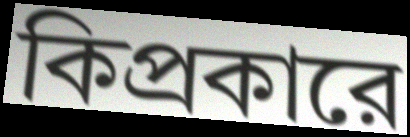
কিপ্রকারে